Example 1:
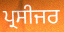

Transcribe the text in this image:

ਪ੍ਰਸੀਜਰ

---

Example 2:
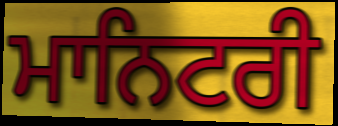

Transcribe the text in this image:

ਮਾਨਿਟਰੀ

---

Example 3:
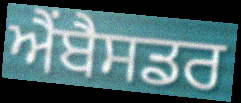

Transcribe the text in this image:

ਐਂਬੈਸਡਰ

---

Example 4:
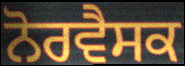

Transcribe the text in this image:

ਨੋਰਵੈਸਕ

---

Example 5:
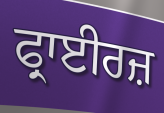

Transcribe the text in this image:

ਫ੍ਰਾਈਰਜ਼